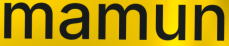
mamun